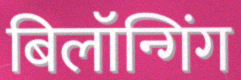
बिलॉन्गिंग